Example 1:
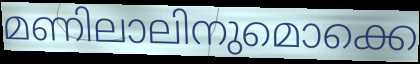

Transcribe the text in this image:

മണിലാലിനുമൊക്കെ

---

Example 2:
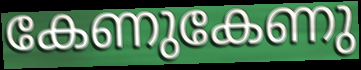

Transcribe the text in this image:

കേണുകേണു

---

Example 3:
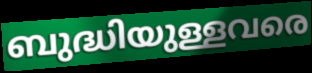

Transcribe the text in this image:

ബുദ്ധിയുള്ളവരെ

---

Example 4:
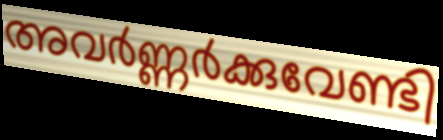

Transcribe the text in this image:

അവർണ്ണർക്കുവേണ്ടി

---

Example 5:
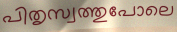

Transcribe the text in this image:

പിതൃസ്വത്തുപോലെ